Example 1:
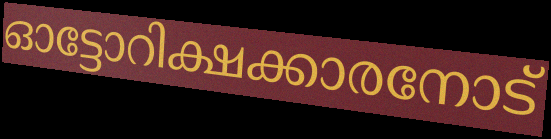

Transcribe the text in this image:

ഓട്ടോറിക്ഷക്കാരനോട്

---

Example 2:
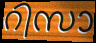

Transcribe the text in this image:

റിസാ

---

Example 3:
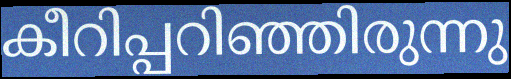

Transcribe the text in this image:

കീറിപ്പറിഞ്ഞിരുന്നു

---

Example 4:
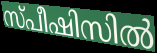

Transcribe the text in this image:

സ്പീഷിസിൽ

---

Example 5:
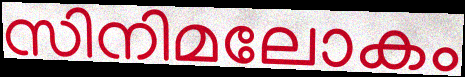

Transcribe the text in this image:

സിനിമലോകം